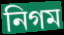
নিগম